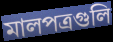
মালপত্রগুলি